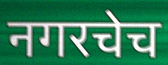
नगरचेच